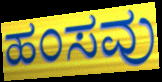
ಹಂಸವು